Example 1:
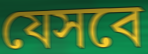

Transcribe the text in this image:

যেসবে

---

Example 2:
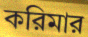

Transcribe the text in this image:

করিমার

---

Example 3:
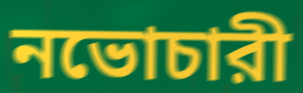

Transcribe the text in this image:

নভোচারী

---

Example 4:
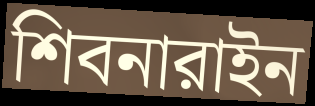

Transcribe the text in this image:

শিবনারাইন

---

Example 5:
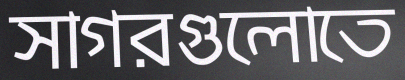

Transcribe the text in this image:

সাগরগুলোতে